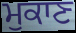
ਮੁਕਾਣ